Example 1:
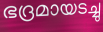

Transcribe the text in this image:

ഭദ്രമായടച്ചു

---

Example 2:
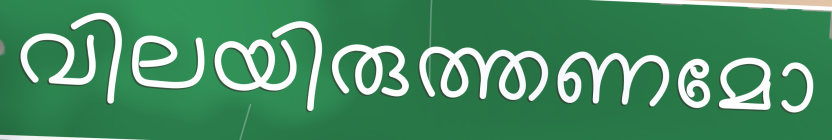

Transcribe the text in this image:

വിലയിരുത്തണമോ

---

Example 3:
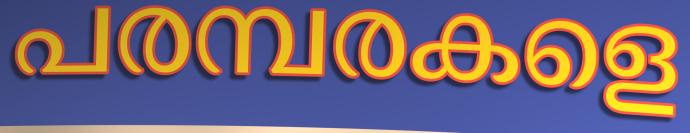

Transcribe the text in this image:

പരമ്പരകളെ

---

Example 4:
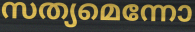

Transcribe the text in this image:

സത്യമെന്നോ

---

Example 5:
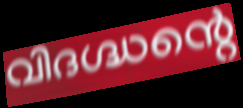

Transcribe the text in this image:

വിദഗ്ദ്ധന്റെ